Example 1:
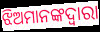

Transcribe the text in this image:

ଝିଅମାନଙ୍କଦ୍ଵାରା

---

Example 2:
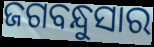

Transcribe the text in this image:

ଜଗବନ୍ଧୁସାର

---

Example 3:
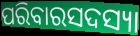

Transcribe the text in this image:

ପରିବାରସଦସ୍ୟା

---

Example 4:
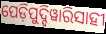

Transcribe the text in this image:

ପେଡ଼ିପୁଦ୍ଦିୱାରିସାହୀ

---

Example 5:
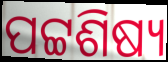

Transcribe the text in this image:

ପଟ୍ଟଶିଷ୍ୟ